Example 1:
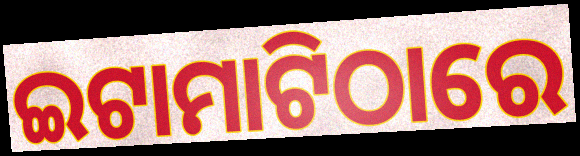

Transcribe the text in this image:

ଇଟାମାଟିଠାରେ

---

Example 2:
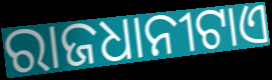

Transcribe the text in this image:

ରାଜଧାନୀଟାଏ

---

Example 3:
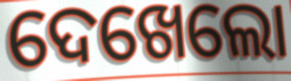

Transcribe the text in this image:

ଦେଖେଲୋ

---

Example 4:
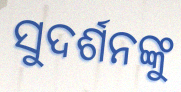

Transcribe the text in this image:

ସୁଦର୍ଶନଙ୍କୁ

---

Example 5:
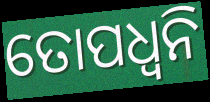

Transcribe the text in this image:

ତୋପଧ୍ୱନି